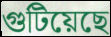
গুটিয়েছে